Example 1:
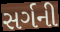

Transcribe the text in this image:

સર્ગની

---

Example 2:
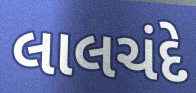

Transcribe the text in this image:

લાલચંદે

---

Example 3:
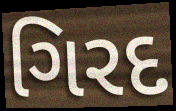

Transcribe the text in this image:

ગિરદ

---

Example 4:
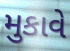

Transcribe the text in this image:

મુકાવે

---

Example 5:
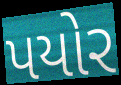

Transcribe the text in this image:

પયોર